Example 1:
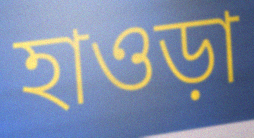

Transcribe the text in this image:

হাওড়া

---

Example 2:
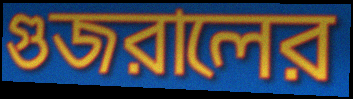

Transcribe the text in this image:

গুজরালের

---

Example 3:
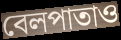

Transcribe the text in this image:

বেলপাতাও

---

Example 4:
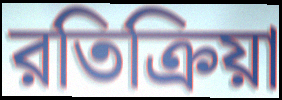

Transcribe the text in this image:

রতিক্রিয়া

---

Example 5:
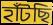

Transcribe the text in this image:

হাঁটছি